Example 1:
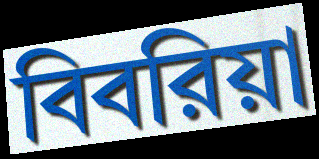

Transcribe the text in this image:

বিবরিয়া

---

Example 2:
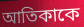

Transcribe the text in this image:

আতিকাকে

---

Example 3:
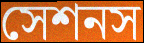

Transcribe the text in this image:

সেশনস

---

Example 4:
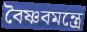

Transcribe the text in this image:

বৈষ্ণবমন্ত্রে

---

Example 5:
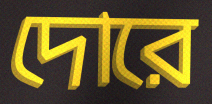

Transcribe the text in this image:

দোরে